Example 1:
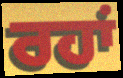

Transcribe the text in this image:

ਰਹਾਂ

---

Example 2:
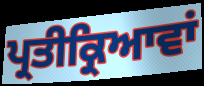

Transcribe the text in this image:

ਪ੍ਰਤੀਕ੍ਰਿਆਵਾਂ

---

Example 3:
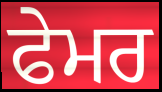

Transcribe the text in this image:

ਫੇਮਰ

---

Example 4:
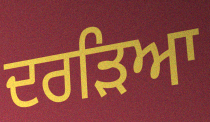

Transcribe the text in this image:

ਦਰੜਿਆ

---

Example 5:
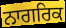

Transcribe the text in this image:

ਨਾਗਰਿਕ